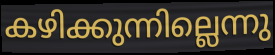
കഴിക്കുന്നില്ലെന്നു